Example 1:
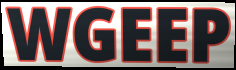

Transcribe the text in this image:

WGEEP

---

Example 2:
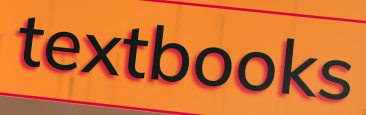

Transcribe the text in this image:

textbooks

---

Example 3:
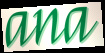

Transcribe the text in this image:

ana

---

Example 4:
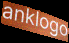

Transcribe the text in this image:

anklogo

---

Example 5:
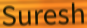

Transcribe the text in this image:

Suresh